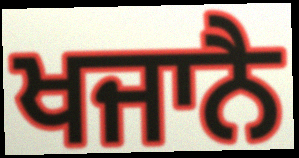
ਖਜਾਨੈ